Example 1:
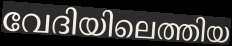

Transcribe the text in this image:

വേദിയിലെത്തിയ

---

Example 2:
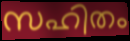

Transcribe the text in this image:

സഹിതം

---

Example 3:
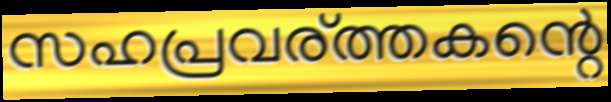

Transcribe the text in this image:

സഹപ്രവര്ത്തകന്റെ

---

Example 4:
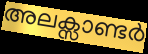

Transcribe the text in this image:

അലക്സാണ്ടർ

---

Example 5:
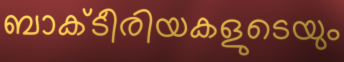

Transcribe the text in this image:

ബാക്ടീരിയകളുടെയും